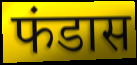
फंडास